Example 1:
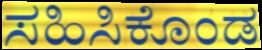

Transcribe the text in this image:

ಸಹಿಸಿಕೊಂಡ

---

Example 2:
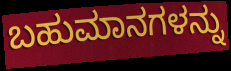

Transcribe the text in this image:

ಬಹುಮಾನಗಳನ್ನು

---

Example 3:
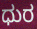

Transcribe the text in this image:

ಧುರ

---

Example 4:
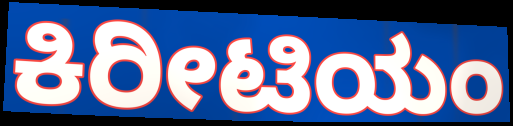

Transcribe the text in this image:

ಕಿರೀಟಿಯಂ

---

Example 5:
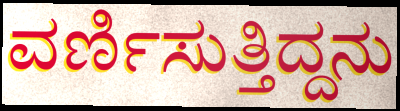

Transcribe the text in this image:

ವರ್ಣಿಸುತ್ತಿದ್ದನು